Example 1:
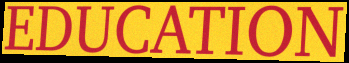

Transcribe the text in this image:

EDUCATION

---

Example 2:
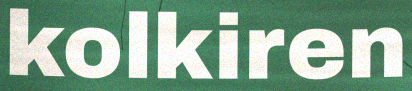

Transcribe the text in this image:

kolkiren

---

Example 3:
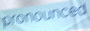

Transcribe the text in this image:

pronounced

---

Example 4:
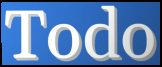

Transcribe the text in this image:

Todo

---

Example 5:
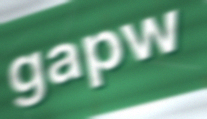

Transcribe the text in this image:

gapw